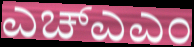
ಎಚ್ಎಎಂ